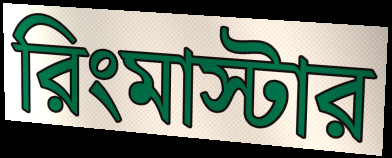
রিংমাস্টার